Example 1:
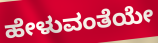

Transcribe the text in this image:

ಹೇಳುವಂತೆಯೇ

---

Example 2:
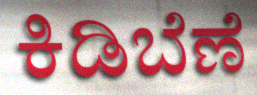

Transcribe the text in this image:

ಕಿಡಿಬೆಣೆ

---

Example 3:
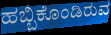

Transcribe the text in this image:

ಹಬ್ಬಿಕೊಂಡಿರುವ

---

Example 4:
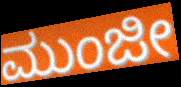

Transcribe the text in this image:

ಮುಂಜೀ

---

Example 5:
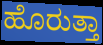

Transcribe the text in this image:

ಹೊರುತ್ತಾ